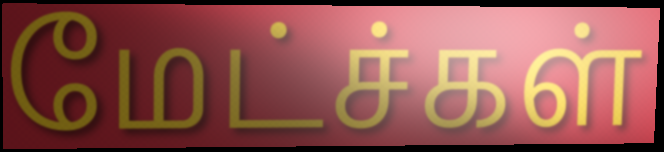
மேட்ச்கள்